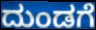
ದುಂಡಗೆ